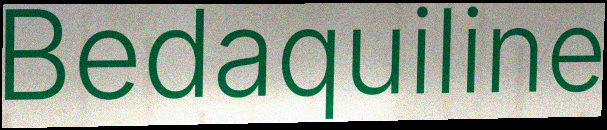
Bedaquiline